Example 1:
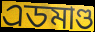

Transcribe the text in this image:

এডমাণ্ড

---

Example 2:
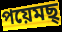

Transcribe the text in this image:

পয়েমছ্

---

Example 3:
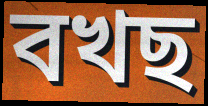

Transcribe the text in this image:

বখছ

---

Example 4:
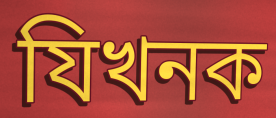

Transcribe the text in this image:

যিখনক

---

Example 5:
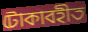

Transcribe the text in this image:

টোকাবহীত